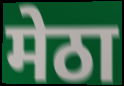
मेठा